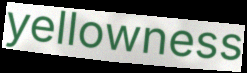
yellowness